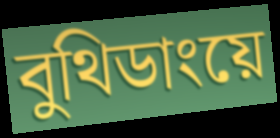
বুথিডাংয়ে